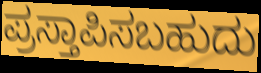
ಪ್ರಸ್ತಾಪಿಸಬಹುದು